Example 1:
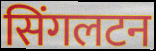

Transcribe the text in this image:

सिंगलटन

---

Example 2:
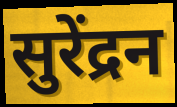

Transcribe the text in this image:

सुरेंद्रन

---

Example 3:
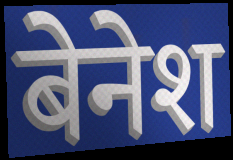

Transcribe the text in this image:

बेनेश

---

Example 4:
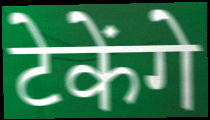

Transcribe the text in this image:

टेकेंगे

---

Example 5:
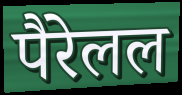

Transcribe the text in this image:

पैरेलल